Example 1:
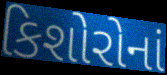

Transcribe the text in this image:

કિશોરોનાં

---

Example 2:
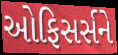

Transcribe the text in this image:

ઓફિસર્સને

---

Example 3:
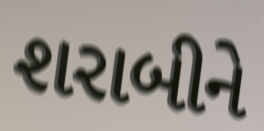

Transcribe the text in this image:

શરાબીને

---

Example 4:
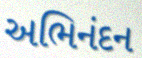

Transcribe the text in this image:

અભિનંદન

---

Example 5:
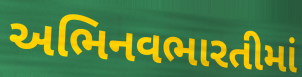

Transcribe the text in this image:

અભિનવભારતીમાં